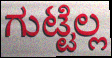
ಗುಟ್ಟೆಲ್ಲ